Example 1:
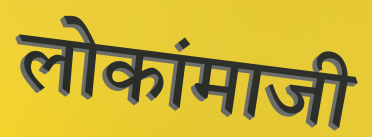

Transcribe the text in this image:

लोकांमाजी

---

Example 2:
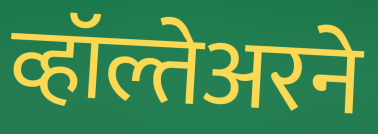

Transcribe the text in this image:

व्हॉल्तेअरने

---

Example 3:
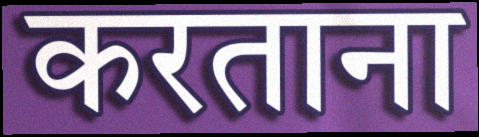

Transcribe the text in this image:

करताना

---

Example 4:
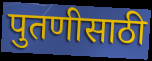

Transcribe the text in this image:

पुतणीसाठी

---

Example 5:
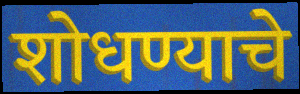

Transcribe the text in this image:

शोधण्याचे